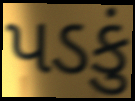
પડકું